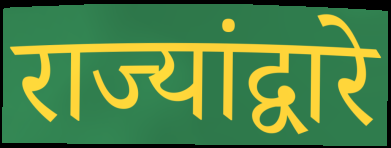
राज्यांद्वारे